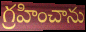
గ్రహించాను